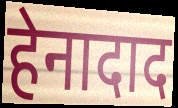
हेनादाद